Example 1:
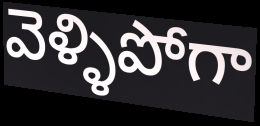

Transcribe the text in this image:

వెళ్ళిపోగా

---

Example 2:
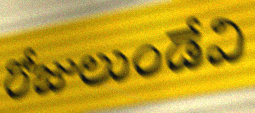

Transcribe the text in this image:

రోజులుండేవి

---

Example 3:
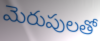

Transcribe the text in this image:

మెరుపులతో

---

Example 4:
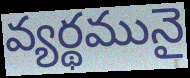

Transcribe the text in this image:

వ్యర్థమునై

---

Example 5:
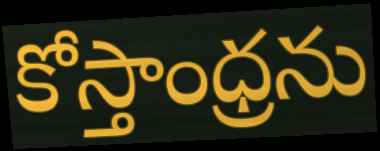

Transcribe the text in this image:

కోస్తాంధ్రను